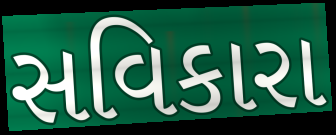
સવિકારા